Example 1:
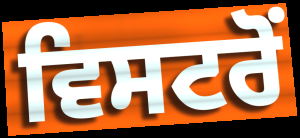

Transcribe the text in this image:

ਵਿਸਟਰੋਂ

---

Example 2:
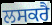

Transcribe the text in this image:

ਲਸਕਰੈ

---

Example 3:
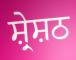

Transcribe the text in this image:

ਸ਼੍ਰੇਸ਼ਠ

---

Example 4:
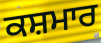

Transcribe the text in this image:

ਕਸ਼ਮਾਰ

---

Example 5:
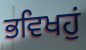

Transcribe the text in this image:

ਭਵਿਖਹੁਂ